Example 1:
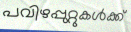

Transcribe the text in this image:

പവിഴപ്പുറ്റുകൾക്ക്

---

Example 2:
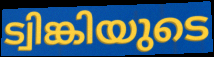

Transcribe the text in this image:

ട്വിങ്കിയുടെ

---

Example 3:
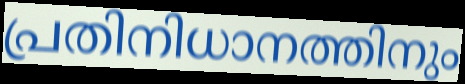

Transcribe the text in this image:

പ്രതിനിധാനത്തിനും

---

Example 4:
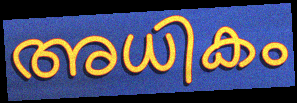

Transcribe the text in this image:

അധികം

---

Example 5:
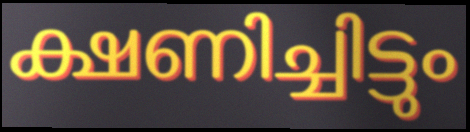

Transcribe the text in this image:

ക്ഷണിച്ചിട്ടും